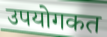
उपयोगकत